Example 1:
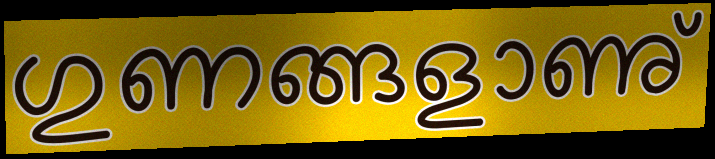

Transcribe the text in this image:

ഗുണങ്ങളാണു്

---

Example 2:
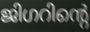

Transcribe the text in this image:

ജിഗറിന്റെ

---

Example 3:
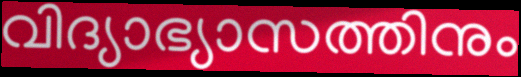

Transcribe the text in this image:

വിദ്യാഭ്യാസത്തിനും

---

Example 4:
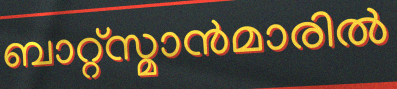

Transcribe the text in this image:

ബാറ്റ്സ്മാൻമാരിൽ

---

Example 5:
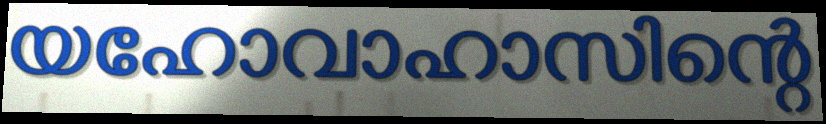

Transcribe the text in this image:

യഹോവാഹാസിന്റെ